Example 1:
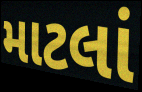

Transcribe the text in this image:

માટલાં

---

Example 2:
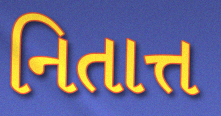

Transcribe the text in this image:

નિતાત્ત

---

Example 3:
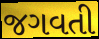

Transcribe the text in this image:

જગવતી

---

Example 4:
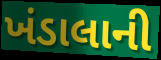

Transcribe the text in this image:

ખંડાલાની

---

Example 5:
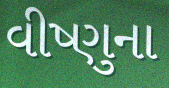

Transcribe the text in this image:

વીષ્ણુના